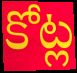
కోట్ల